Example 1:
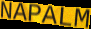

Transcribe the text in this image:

NAPALM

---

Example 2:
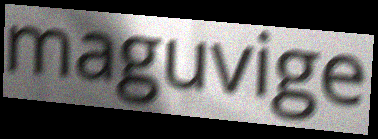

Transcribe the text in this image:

maguvige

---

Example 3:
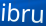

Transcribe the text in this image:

ibru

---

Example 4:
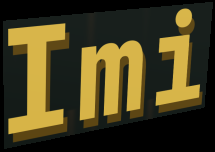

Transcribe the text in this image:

Imi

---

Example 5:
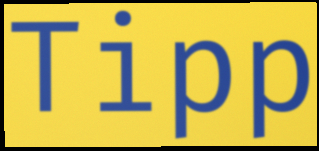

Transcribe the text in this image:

Tipp